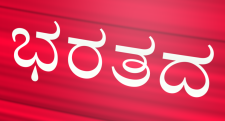
ಭರತದ